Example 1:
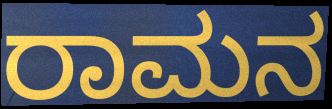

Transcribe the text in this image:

ರಾಮನ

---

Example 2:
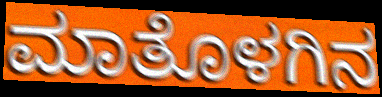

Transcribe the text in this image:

ಮಾತೊಳಗಿನ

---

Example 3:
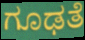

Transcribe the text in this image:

ಗೂಢತೆ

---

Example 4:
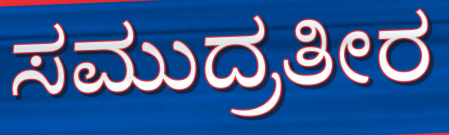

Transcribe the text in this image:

ಸಮುದ್ರತೀರ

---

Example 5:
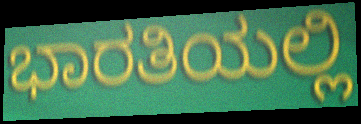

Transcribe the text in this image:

ಭಾರತಿಯಲ್ಲಿ